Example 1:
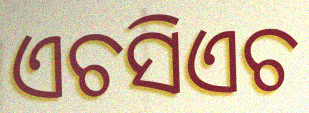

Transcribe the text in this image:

ଏଚସିଏଚ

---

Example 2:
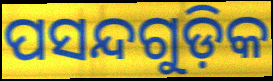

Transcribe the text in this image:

ପସନ୍ଦଗୁଡ଼ିକ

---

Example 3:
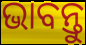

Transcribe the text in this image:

ଭାବନ୍ତୁ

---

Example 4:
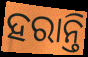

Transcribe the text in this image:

ହରାନ୍ତି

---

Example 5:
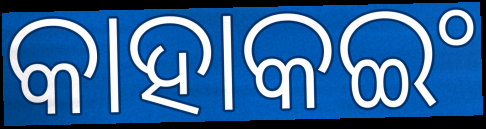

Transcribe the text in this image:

କାହାକଇଂ